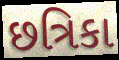
છત્રિકા